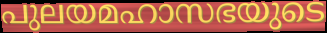
പുലയമഹാസഭയുടെ